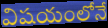
విషయంలోనే